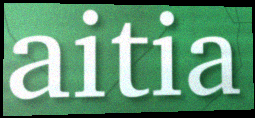
aitia